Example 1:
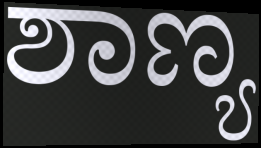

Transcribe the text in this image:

ಶಾಣ್ಯ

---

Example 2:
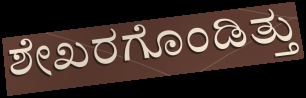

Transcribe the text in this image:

ಶೇಖರಗೊಂಡಿತ್ತು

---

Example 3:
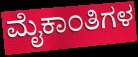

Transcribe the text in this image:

ಮೈಕಾಂತಿಗಳ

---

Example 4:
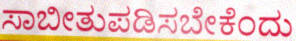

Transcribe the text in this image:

ಸಾಬೀತುಪಡಿಸಬೇಕೆಂದು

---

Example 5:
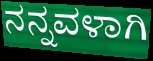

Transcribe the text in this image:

ನನ್ನವಳಾಗಿ